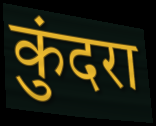
कुंदरा